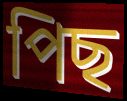
পিছ